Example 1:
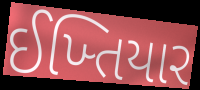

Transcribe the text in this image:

ઈખ્તિયાર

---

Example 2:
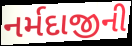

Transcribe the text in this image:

નર્મદાજીની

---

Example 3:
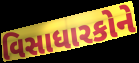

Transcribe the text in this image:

વિસાધારકોને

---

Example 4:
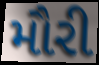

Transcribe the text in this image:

મૌરી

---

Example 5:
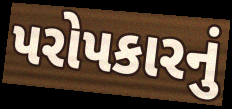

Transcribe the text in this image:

પરોપકારનું